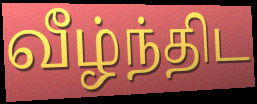
வீழ்ந்திட